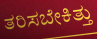
ತರಿಸಬೇಕಿತ್ತು